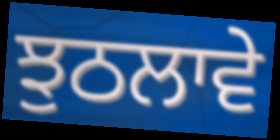
ਝੁਠਲਾਵੇ